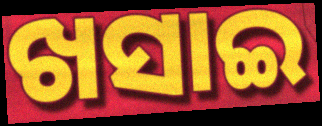
ଖସାଇ